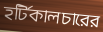
হর্টিকালচারের